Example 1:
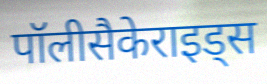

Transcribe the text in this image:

पॉलीसैकेराइड्स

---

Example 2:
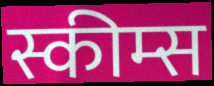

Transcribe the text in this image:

स्‍कीम्‍स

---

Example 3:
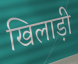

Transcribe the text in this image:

खिलाड़ी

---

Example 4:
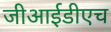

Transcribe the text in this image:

जीआईडीएच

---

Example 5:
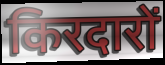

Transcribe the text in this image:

किरदारों